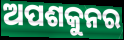
ଅପଶକୁନର